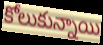
కోలుకున్నాయి